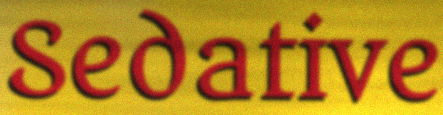
Sedative